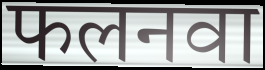
फलनवा